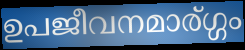
ഉപജീവനമാര്ഗ്ഗം